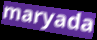
maryada